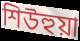
শিউহুয়া